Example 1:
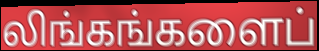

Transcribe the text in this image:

லிங்கங்களைப்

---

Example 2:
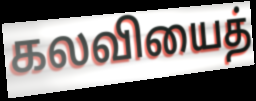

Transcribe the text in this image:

கலவியைத்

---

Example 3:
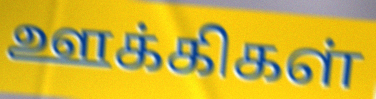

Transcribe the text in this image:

ஊக்கிகள்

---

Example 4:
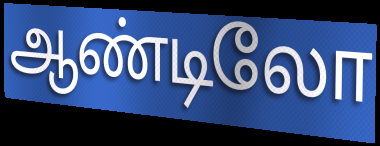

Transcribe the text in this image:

ஆண்டிலோ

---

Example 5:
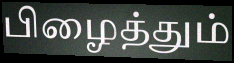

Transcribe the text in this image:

பிழைத்தும்